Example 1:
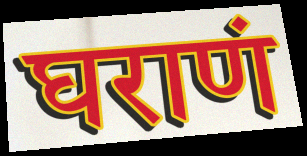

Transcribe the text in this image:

घराणं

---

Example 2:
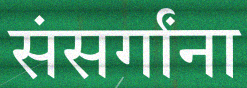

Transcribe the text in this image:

संसर्गांना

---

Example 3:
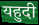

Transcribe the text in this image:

यहुदी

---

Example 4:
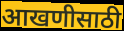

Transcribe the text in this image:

आखणीसाठी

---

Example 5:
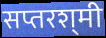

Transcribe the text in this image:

सप्तरश्मी